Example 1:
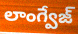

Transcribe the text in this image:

లాంగ్వేజ్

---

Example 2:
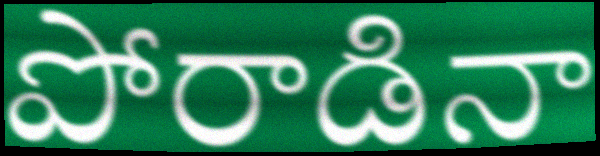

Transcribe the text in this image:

పోరాడినా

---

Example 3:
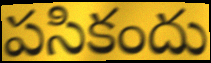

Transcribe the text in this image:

పసికందు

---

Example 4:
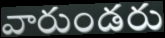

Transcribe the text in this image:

వారుండరు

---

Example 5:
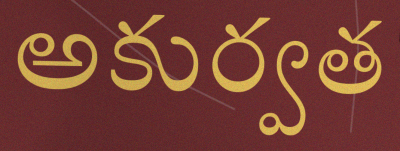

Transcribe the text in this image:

అకుర్వత